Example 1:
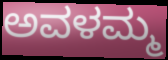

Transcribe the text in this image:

ಅವಳಮ್ಮ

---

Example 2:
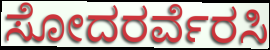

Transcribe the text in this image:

ಸೋದರರ್ವೆರಸಿ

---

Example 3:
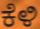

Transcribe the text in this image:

ಕೆಳಿ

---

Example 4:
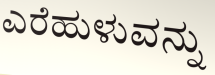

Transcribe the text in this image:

ಎರೆಹುಳುವನ್ನು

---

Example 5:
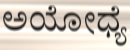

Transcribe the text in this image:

ಅಯೋಧ್ಯೆ